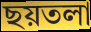
ছয়তলা